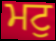
ਮਟੁ